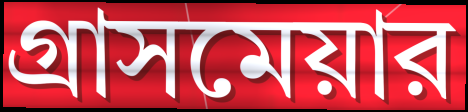
গ্রাসমেয়ার